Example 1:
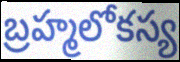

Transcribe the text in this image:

బ్రహ్మలోకస్య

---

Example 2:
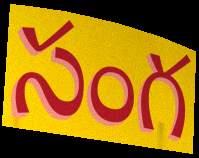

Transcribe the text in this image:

సంగ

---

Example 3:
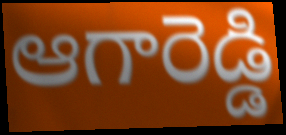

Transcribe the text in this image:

ఆగారెడ్డి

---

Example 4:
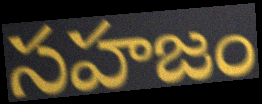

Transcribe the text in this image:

సహజం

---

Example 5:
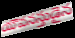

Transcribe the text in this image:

యౌవనస్తుడైన